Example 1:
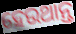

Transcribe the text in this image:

ହେଉଥାନ୍ତ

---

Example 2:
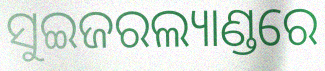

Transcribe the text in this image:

ସୁଇଜରଲ୍ୟାଣ୍ଡରେ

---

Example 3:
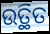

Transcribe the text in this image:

ଉତ୍ଥିତ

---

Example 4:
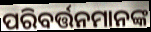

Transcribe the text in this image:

ପରିବର୍ତ୍ତନମାନଙ୍କ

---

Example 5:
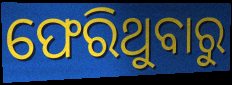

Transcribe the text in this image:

ଫେରିଥୁବାରୁ